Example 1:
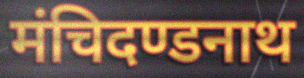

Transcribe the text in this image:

मंचिदण्डनाथ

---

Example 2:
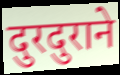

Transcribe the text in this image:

दुरदुराने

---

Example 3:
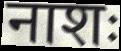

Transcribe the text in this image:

नाशः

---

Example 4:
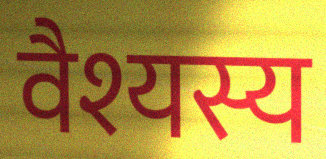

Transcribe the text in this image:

वैश्यस्य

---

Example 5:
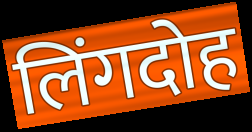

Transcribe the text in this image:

लिंगदोह